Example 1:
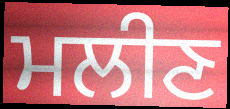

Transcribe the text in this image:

ਮਲੀਣ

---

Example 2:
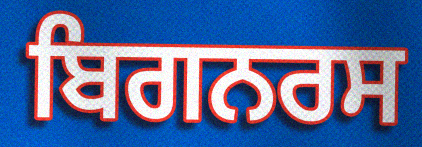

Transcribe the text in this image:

ਬਿਗਨਰਸ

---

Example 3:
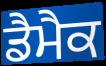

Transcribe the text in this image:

ਡੈਮੈਕ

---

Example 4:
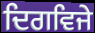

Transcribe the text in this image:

ਦਿਗਵਿਜੇ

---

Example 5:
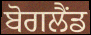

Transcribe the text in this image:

ਬੋਗਲੈਂਡ